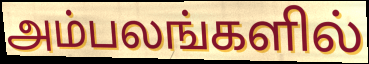
அம்பலங்களில்